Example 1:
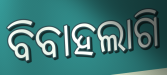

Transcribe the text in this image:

ବିବାହଲାଗି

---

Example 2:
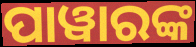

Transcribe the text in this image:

ପାୱାରଙ୍କ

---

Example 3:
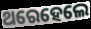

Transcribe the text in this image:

ଥରେହେଲେ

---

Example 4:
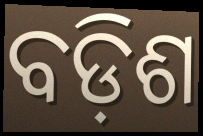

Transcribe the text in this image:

ବଡ଼ିଶ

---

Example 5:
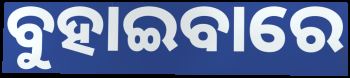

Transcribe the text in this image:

ବୁହାଇବାରେ